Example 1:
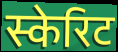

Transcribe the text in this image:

स्केरिट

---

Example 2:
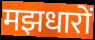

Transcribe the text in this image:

मझधारों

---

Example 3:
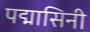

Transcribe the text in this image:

पद्मासिनी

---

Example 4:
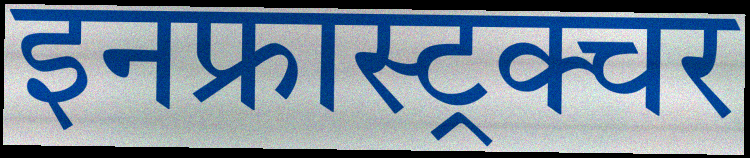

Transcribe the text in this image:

इनफ्रास्ट्रक्चर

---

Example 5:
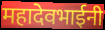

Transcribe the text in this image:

महादेवभाईनी